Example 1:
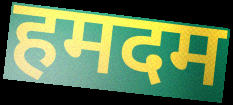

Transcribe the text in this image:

हमदम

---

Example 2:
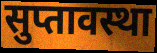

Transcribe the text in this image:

सुप्तावस्था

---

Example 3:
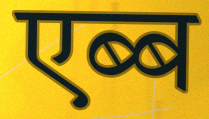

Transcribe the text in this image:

एब्ब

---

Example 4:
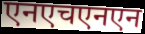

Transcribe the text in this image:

एनएचएनएन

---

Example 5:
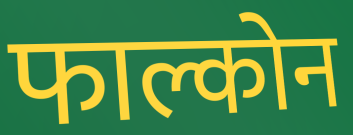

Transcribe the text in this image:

फाल्कोन